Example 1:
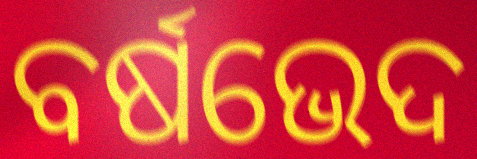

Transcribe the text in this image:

ବର୍ଷଭେଦ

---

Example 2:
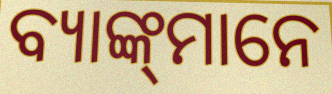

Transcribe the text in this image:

ବ୍ୟାଙ୍କ୍‌ମାନେ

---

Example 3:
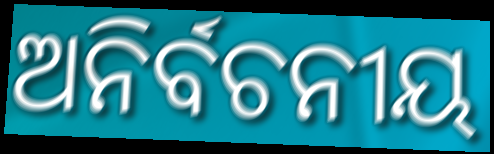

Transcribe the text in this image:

ଅନିର୍ବଚନୀୟ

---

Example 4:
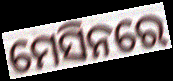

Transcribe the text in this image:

ମେସିନରେ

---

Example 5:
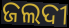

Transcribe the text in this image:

ଜଲଦୀ